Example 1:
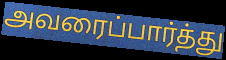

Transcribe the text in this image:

அவரைப்பார்த்து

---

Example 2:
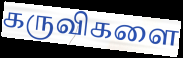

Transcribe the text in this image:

கருவிகளை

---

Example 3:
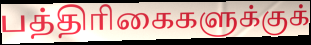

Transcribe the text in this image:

பத்திரிகைகளுக்குக்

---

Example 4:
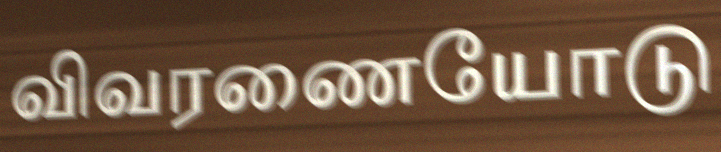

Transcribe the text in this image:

விவரணையோடு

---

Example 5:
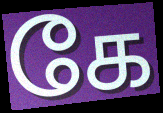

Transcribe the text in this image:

கே